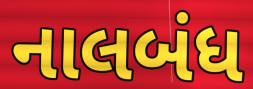
નાલબંધ